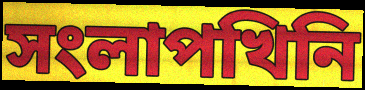
সংলাপখিনি